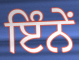
ਇੰਨੇਂ